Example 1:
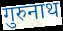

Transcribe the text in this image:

गुरुनाथ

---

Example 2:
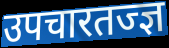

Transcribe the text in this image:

उपचारतज्ज्ञ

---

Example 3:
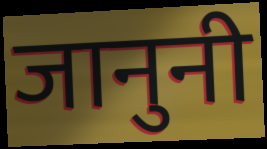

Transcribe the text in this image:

जानुनी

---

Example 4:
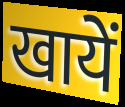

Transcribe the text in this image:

खायें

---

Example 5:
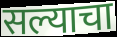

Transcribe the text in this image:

सल्याचा